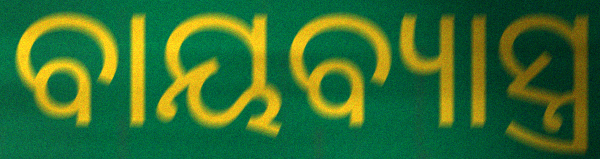
ବାୟବ୍ୟାସ୍ତ୍ର